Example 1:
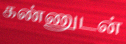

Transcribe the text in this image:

கண்ணுடன்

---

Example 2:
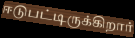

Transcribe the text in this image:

ஈடுபட்டிருக்கிறார்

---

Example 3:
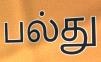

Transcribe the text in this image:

பல்து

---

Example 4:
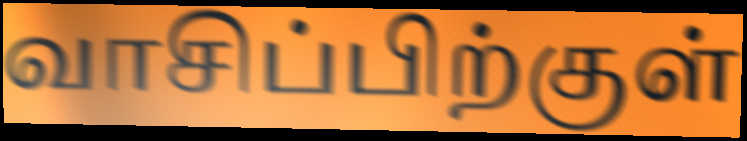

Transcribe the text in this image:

வாசிப்பிற்குள்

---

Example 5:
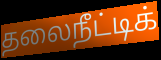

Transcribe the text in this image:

தலைநீட்டிக்